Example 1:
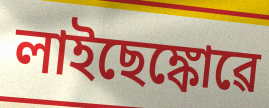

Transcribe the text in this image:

লাইছেঙ্কোৱে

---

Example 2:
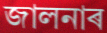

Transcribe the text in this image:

জালনাৰ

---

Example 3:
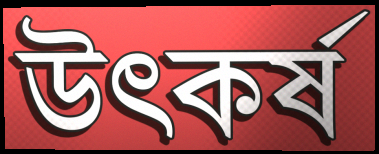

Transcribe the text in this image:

উৎকৰ্ষ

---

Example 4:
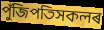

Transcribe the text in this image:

পুঁজিপতিসকলৰ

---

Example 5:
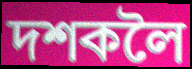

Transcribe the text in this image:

দশকলৈ